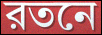
রতনে